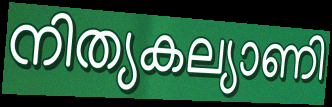
നിത്യകല്യാണി